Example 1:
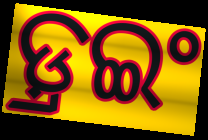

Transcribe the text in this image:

ଡ଼୍ରଇଂ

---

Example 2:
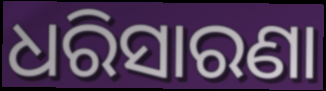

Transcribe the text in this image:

ଧରିସାରଣା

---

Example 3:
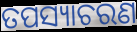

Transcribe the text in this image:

ତପସ୍ୟାଚରଣ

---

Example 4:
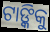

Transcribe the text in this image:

ଟାଙ୍କିକୁ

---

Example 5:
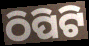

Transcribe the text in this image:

ଠିପିଟି